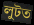
লুটত